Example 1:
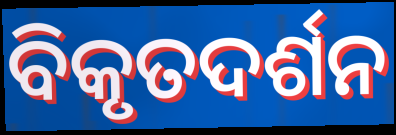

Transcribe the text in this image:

ବିକୃତଦର୍ଶନ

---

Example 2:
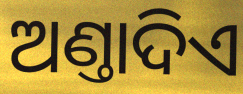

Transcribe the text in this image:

ଅଣ୍ତାଦିଏ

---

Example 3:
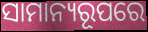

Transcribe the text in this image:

ସାମାନ୍ୟରୂପରେ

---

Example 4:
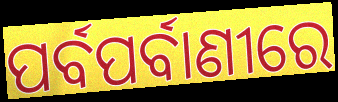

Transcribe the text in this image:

ପର୍ବପର୍ବାଣୀରେ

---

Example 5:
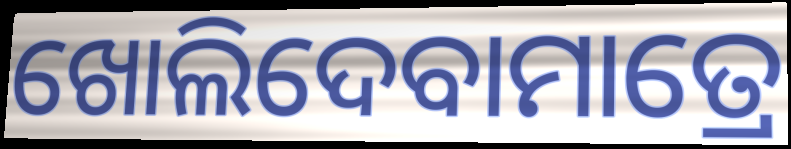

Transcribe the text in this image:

ଖୋଲିଦେବାମାତ୍ରେ